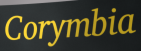
Corymbia